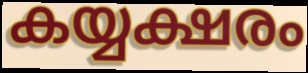
കയ്യക്ഷരം